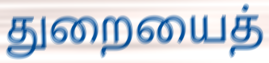
துறையைத்